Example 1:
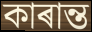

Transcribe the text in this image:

কাৰান্ত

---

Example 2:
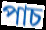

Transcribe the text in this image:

পাচ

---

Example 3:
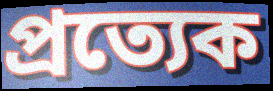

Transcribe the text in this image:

প্ৰত্যেক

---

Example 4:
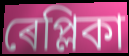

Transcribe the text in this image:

ৰেপ্লিকা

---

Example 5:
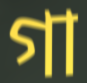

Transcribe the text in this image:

গা